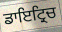
ਡਾਇਟ੍ਰਿਚ